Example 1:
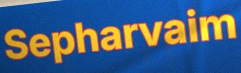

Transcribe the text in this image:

Sepharvaim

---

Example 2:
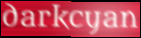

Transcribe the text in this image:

darkcyan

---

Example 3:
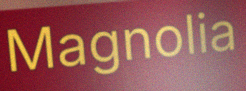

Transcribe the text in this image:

Magnolia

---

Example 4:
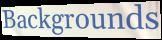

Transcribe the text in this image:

Backgrounds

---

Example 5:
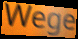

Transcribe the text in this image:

Wege